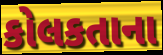
કોલકતાના